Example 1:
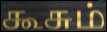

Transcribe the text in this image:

கூசும்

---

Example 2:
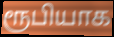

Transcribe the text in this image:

ரூபியாக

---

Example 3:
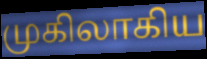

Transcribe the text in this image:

முகிலாகிய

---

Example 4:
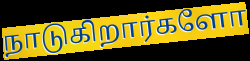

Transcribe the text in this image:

நாடுகிறார்களோ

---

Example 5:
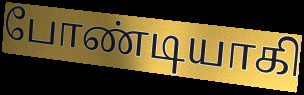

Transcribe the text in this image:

போண்டியாகி